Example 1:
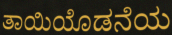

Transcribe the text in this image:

ತಾಯಿಯೊಡನೆಯ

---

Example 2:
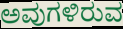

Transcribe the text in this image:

ಅವುಗಳಿರುವ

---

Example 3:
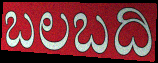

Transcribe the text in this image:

ಬಲಬದಿ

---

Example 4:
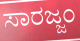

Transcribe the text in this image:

ಸಾರಜ್ಜಂ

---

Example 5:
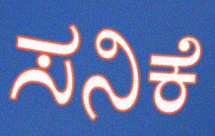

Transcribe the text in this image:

ಸನಿಕೆ